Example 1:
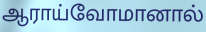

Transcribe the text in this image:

ஆராய்வோமானால்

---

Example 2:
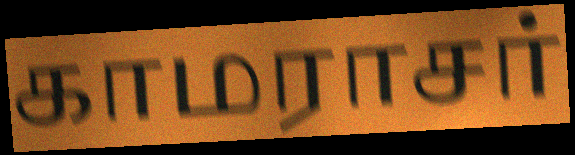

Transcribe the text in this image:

காமராசர்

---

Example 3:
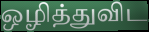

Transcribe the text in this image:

ஒழித்துவிட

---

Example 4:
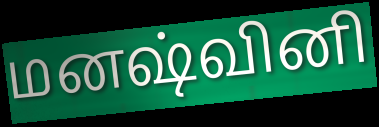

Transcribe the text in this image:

மனஷ்வினி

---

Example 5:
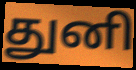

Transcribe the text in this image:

துனி